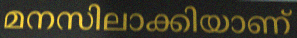
മനസിലാക്കിയാണ്